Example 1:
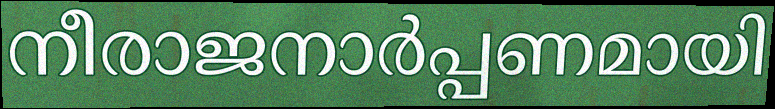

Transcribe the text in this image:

നീരാജനാർപ്പണമായി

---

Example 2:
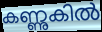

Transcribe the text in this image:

കണ്ണുകിൽ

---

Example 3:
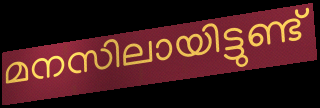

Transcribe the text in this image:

മനസിലായിട്ടുണ്ട്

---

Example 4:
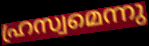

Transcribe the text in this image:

ഹ്രസ്വമെന്നു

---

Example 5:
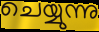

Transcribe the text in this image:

ചെയ്യുന്നു